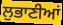
ਲੁਭਾਣੀਆਂ